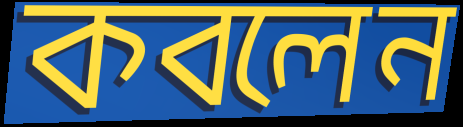
কবলেন